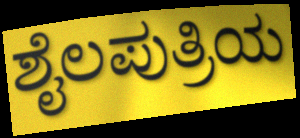
ಶೈಲಪುತ್ರಿಯ